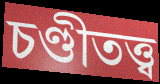
চণ্ডীতত্ত্ব